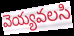
వెయ్యవలసి